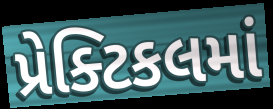
પ્રેક્ટિકલમાં